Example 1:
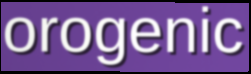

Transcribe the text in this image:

orogenic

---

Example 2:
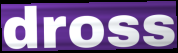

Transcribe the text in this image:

dross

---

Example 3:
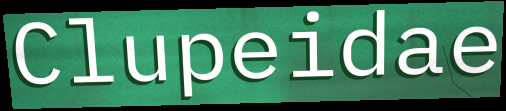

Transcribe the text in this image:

Clupeidae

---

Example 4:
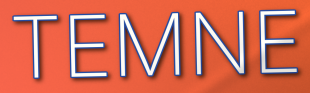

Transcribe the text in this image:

TEMNE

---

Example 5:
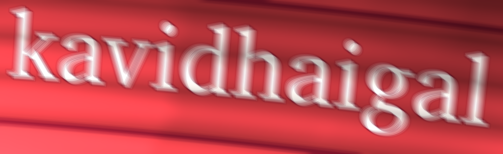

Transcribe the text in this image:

kavidhaigal